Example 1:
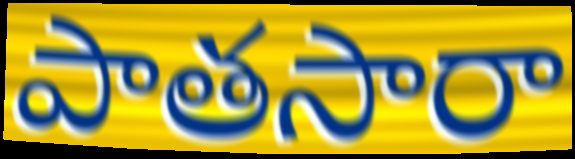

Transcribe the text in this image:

పాతసారా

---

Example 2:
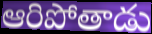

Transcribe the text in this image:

ఆరిపోతాడు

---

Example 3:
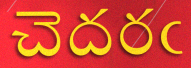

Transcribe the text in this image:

చెదరఁ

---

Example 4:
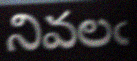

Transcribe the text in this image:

నివలఁ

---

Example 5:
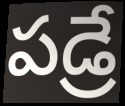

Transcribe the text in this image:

పడ్రే